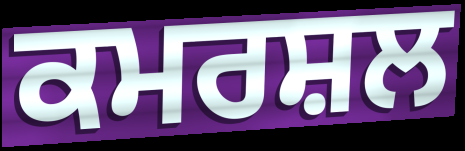
ਕਮਰਸ਼ਲ